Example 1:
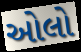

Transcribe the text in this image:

ઓલો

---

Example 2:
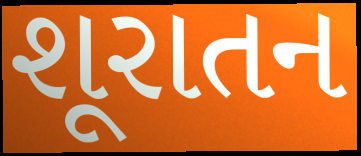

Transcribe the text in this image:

શૂરાતન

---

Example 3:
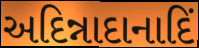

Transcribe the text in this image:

અદિન્નાદાનાદિં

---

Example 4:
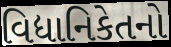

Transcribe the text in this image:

વિદ્યાનિકેતનો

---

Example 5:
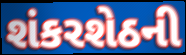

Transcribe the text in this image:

શંકરશેઠની